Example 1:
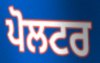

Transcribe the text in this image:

ਪੋਲਟਰ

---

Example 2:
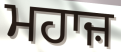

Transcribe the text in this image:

ਮਹਾਜ਼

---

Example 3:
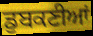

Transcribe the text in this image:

ਡੁਬਕਣੀਆਂ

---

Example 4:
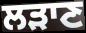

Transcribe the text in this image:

ਲੜਾਣ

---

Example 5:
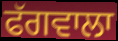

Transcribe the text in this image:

ਫੱਗਵਾਲਾ